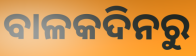
ବାଳକଦିନରୁ